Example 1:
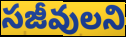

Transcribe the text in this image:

సజీవులని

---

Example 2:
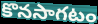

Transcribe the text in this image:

కొనసాగటం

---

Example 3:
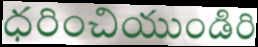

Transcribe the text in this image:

ధరించియుండిరి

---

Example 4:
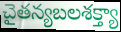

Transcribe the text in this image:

చైతన్యబలశక్త్యా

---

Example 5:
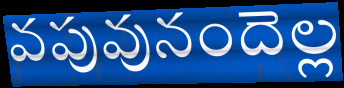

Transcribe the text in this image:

వపువునందెల్ల